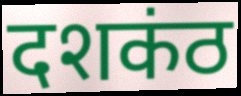
दशकंठ